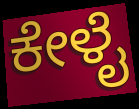
ಕೇಳೈ